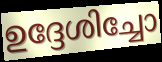
ഉദ്ദേശിച്ചോ